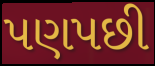
પણપછી